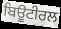
ਬਿਊਟੀਰਲ